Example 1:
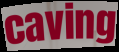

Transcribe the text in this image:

caving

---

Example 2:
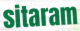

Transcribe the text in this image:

sitaram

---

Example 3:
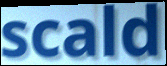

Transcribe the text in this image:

scald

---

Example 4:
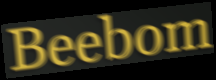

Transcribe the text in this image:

Beebom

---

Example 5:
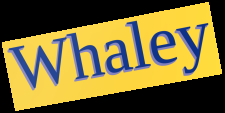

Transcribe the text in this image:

Whaley